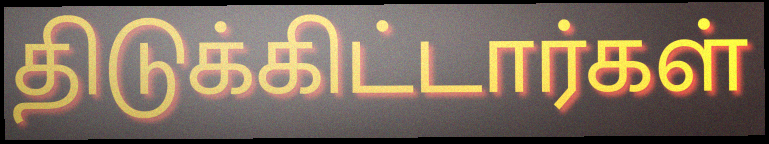
திடுக்கிட்டார்கள்